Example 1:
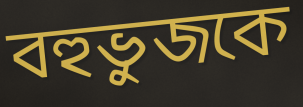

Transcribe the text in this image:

বহুভুজকে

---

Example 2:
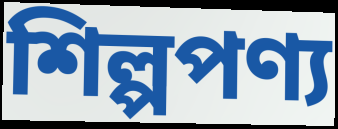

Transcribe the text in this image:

শিল্পপণ্য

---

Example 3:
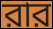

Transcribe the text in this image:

রার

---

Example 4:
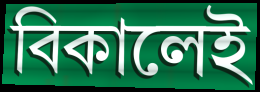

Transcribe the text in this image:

বিকালেই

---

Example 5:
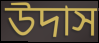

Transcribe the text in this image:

উদাস